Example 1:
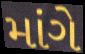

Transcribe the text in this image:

માંગે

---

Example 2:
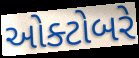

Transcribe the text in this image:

ઓક્ટોબરે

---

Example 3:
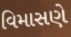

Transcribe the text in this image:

વિમાસણે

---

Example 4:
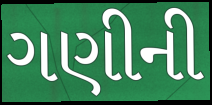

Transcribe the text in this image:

ગણીની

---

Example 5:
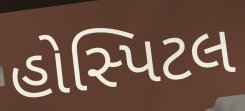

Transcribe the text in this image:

હોસ્પિટલ